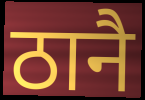
ठानै